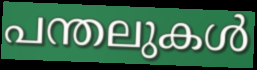
പന്തലുകൾ